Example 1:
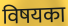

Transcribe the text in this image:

विषयका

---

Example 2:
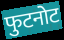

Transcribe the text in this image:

फुटनोट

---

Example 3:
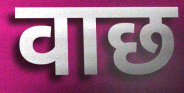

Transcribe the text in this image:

वाछ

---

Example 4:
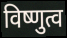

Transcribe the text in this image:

विष्णुत्व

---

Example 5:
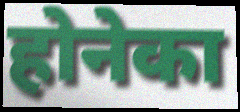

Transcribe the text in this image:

होनेका